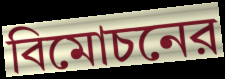
বিমোচনের